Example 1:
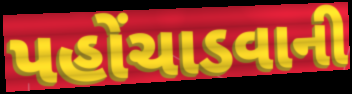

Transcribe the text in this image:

પહોંચાડવાની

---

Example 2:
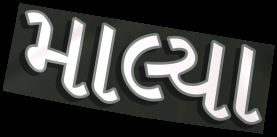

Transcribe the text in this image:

માલ્યા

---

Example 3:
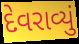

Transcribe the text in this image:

દેવરાવ્યું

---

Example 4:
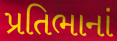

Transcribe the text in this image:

પ્રતિભાનાં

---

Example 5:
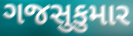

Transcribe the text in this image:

ગજસુકુમાર